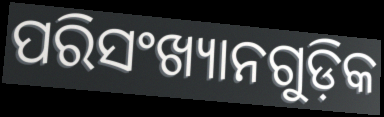
ପରିସଂଖ୍ୟାନଗୁଡ଼ିକ